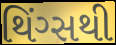
થિંગ્સથી